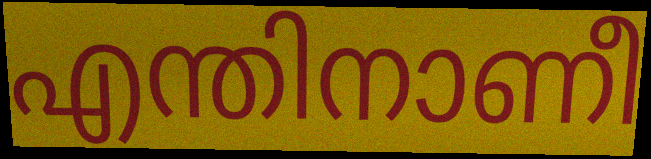
എന്തിനാണീ